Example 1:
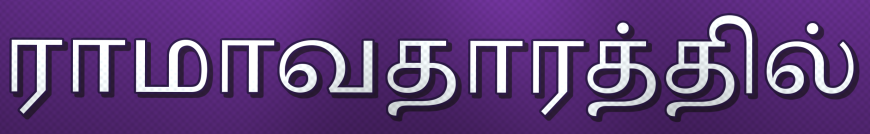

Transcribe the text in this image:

ராமாவதாரத்தில்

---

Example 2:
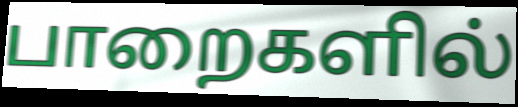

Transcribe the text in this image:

பாறைகளில்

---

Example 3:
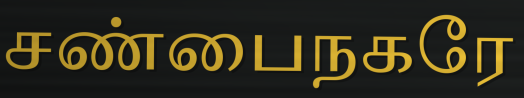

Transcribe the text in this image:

சண்பைநகரே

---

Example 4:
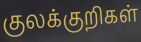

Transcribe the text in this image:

குலக்குறிகள்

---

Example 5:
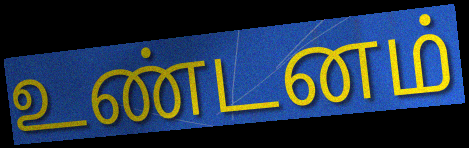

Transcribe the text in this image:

உண்டனம்